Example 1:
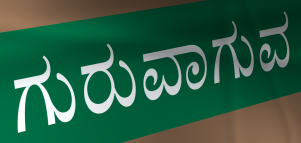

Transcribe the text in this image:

ಗುರುವಾಗುವ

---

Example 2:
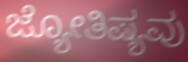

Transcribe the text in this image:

ಜ್ಯೋತಿಷ್ಯವು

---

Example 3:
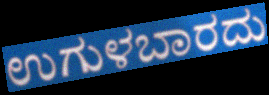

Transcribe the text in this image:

ಉಗುಳಬಾರದು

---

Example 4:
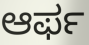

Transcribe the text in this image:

ಆರ್ಫ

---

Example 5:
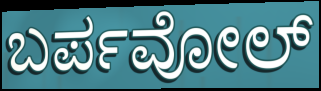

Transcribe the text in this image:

ಬರ್ಪವೋಲ್